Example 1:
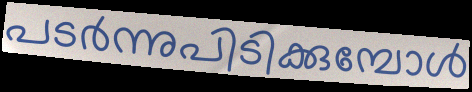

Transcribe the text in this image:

പടർന്നുപിടിക്കുമ്പോൾ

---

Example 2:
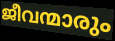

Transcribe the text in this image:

ജീവന്മാരും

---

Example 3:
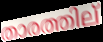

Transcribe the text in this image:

താരത്തില്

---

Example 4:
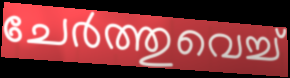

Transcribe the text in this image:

ചേർത്തുവെച്ച്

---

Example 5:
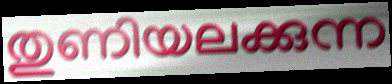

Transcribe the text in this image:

തുണിയലക്കുന്ന